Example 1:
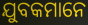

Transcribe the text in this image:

ଯୁବକମାନେ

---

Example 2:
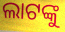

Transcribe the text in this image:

ଲାଟଙ୍କୁ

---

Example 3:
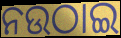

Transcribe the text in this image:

ନଉଠାଇ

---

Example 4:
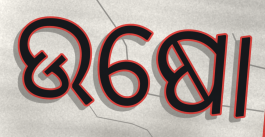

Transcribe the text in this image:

ଉଷୋ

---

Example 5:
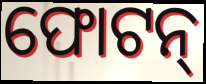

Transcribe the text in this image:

ଫୋଟନ୍